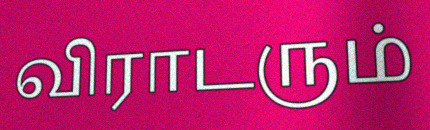
விராடரும்